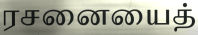
ரசனையைத்